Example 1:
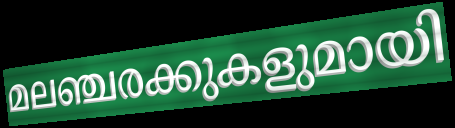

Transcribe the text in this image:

മലഞ്ചരക്കുകളുമായി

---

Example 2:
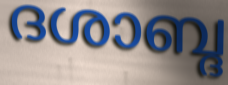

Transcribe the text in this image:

ദശാബ്ദ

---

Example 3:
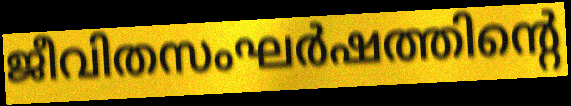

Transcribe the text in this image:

ജീവിതസംഘർഷത്തിന്റെ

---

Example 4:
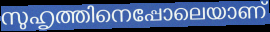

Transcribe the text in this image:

സുഹൃത്തിനെപ്പോലെയാണ്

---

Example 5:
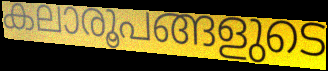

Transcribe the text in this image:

കലാരൂപങ്ങളുടെ